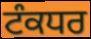
ਟੰਕਧਰ